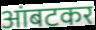
आंबटकर